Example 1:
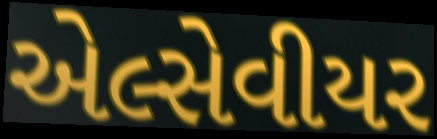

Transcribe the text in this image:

એલ્સેવીયર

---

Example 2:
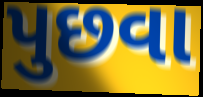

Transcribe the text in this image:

પુછવા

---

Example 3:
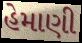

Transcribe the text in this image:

હેમાણી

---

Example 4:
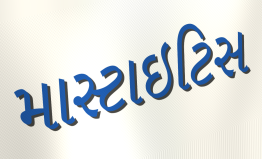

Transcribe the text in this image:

માસ્ટાઇટિસ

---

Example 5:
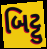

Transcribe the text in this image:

બિટ્ટુ